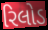
રિલોડ